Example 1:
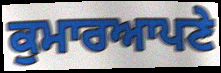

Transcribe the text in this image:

ਕੁਮਾਰਆਪਣੇ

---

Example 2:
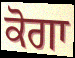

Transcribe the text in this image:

ਕੋਗਾ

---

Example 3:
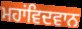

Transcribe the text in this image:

ਮਹਾਂਵਿਦਵਾਨ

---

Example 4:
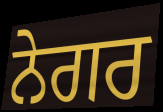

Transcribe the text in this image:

ਨੇਗਰ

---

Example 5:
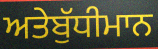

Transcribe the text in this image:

ਅਤੇਬੁੱਧੀਮਾਨ